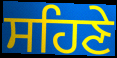
ਸਹਿਣੇ